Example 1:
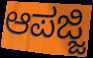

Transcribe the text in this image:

ಆಪಜ್ಜಿ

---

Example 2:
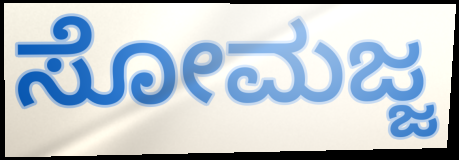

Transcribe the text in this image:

ಸೋಮಜ್ಜ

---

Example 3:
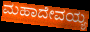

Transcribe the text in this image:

ಮಹಾದೇವಯ್ಯ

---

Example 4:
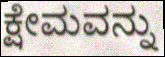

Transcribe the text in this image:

ಕ್ಷೇಮವನ್ನು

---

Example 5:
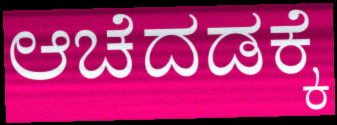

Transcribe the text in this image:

ಆಚೆದಡಕ್ಕೆ